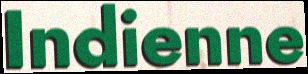
Indienne